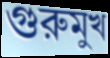
গুরুমুখ